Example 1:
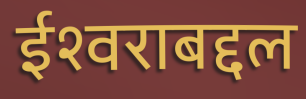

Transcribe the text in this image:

ईश्वराबद्दल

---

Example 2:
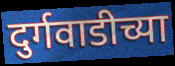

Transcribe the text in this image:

दुर्गवाडीच्या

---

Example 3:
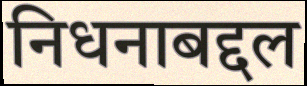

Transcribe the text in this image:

निधनाबद्दल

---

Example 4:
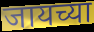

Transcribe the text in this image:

जायच्या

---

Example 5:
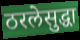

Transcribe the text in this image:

ठरलेसुद्धा